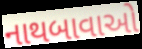
નાથબાવાઓ